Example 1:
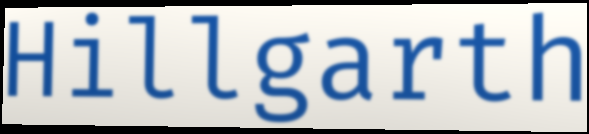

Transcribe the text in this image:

Hillgarth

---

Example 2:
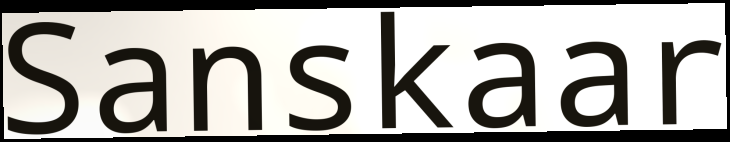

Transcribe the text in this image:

Sanskaar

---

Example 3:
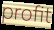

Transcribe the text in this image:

profit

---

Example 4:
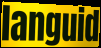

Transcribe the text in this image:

languid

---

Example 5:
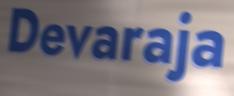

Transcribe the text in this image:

Devaraja